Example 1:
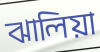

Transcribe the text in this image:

ঝালিয়া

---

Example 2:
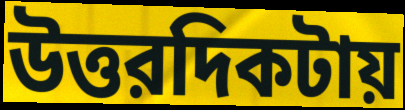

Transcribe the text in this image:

উত্তরদিকটায়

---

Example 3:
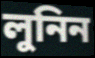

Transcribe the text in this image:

লুনিন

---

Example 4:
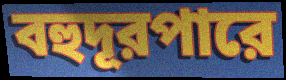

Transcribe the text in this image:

বহুদূরপারে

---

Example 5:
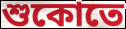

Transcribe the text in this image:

শুকোতে